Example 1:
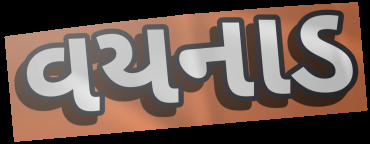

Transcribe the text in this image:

વયનાડ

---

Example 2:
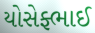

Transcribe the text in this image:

યોસેફ્ભાઈ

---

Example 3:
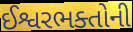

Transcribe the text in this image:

ઈશ્વરભક્તોની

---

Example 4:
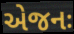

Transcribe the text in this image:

એજનઃ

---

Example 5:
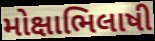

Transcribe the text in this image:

મોક્ષાભિલાષી